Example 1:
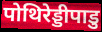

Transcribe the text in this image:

पोथिरेड्डीपाडु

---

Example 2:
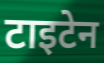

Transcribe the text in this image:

टाइटेन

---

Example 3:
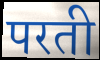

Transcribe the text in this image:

परती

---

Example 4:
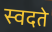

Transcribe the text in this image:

स्वदते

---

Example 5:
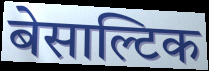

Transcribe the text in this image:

बेसाल्टिक